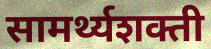
सामर्थ्यशक्ती